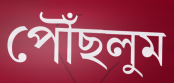
পৌঁছলুম